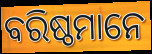
ବରିଷ୍ଠମାନେ